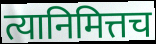
त्यानिमित्तच